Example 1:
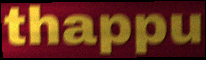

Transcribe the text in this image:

thappu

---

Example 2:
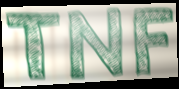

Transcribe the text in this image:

TNF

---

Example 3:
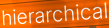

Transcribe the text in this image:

hierarchical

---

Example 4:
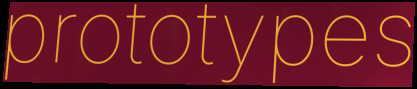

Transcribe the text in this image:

prototypes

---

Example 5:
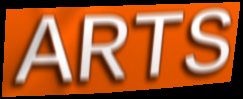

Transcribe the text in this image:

ARTS